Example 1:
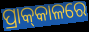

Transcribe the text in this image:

ପ୍ରାକ୍‌କାଳରେ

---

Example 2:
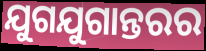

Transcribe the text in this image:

ଯୁଗଯୁଗାନ୍ତରର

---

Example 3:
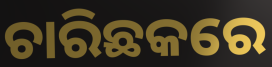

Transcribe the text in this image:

ଚାରିଛକରେ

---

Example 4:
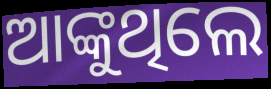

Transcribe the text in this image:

ଆଙ୍କୁଥିଲେ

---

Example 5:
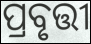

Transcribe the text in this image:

ପ୍ରବୃତ୍ତୀ